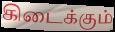
கிடைக்கும்